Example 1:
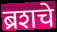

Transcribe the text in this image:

ब्रशचे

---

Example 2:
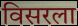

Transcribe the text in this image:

विसरला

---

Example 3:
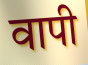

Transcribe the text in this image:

वापी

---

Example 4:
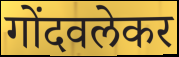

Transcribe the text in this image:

गोंदवलेकर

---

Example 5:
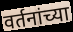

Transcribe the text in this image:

वर्तनांच्या